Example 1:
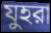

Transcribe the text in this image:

যুহরা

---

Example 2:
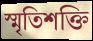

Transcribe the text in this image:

স্মৃতিশক্তি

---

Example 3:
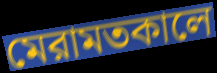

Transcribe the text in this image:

মেরামতকালে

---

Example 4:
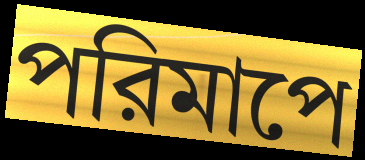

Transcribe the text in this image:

পরিমাপে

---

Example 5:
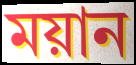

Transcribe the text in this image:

ময়ান